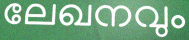
ലേഖനവും